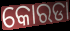
କୋରଡା